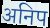
अनिप